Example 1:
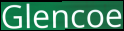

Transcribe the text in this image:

Glencoe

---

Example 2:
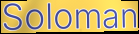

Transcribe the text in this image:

Soloman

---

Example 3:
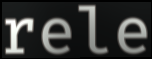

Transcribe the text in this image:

rele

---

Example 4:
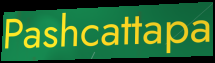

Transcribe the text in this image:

Pashcattapa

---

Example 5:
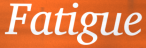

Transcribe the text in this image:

Fatigue